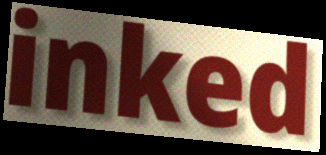
inked